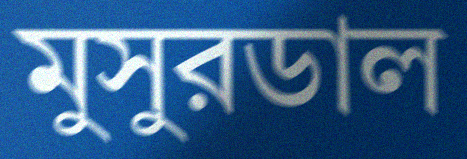
মুসুরডাল